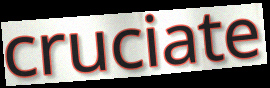
cruciate